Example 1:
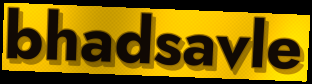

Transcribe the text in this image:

bhadsavle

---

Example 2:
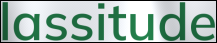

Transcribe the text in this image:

lassitude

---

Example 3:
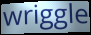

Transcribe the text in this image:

wriggle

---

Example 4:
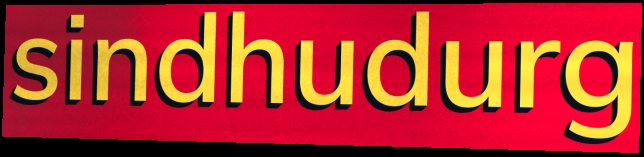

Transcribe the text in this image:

sindhudurg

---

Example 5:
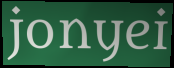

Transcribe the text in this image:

jonyei